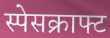
स्पेसक्राफ्ट